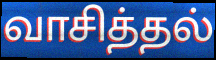
வாசித்தல்